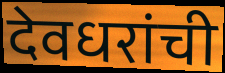
देवधरांची